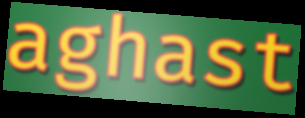
aghast